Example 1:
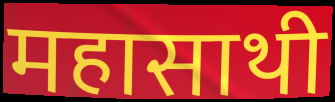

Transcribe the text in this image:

महासाथी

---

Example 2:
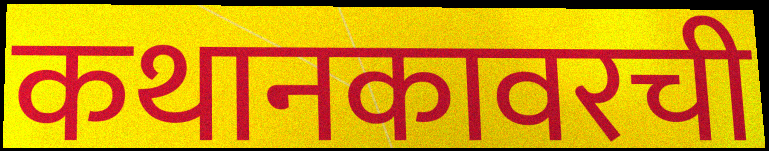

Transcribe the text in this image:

कथानकावरची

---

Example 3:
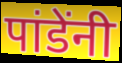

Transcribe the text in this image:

पांडेंनी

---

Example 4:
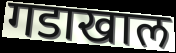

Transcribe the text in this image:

गडाखाल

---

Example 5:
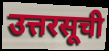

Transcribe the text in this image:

उत्तरसूची